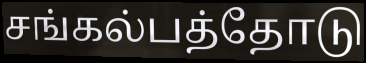
சங்கல்பத்தோடு